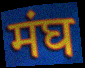
मंघ